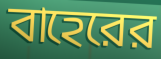
বাহেরের